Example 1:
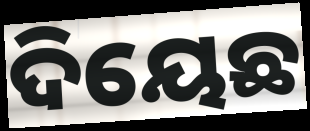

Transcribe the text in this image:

ଦିୟେଛ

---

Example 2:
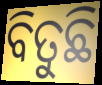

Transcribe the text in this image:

ବିତୁଛି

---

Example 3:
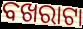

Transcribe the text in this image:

ବଖରାଟା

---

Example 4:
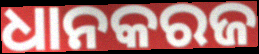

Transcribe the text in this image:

ଧାନକରଜ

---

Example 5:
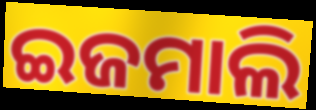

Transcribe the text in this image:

ଇଜମାଲି